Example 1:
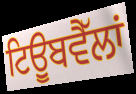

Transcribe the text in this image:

ਟਿਊੁਬਵੈੱਲਾਂ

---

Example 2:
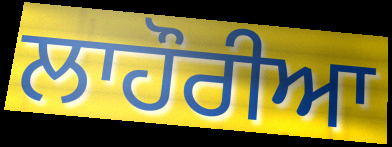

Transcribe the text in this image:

ਲਾਹੌਰੀਆ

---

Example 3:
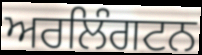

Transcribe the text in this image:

ਅਰਲਿੰਗਟਨ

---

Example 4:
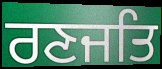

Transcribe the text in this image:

ਰਣਜਤਿ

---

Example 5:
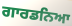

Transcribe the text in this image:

ਗਾਰਡਨਿਆ